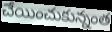
చేయించుకున్నంత